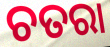
ଚତରା